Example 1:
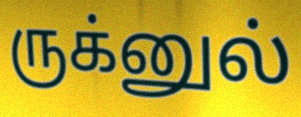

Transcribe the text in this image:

ருக்னுல்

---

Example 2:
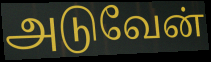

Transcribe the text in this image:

அடுவேன்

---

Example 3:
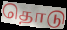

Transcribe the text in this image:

தொடு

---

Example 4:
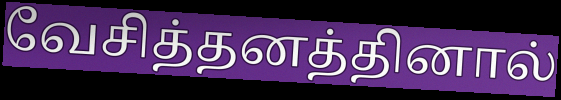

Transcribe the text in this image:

வேசித்தனத்தினால்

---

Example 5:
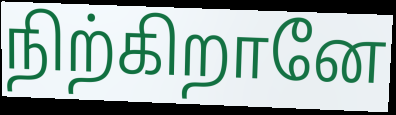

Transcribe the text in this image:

நிற்கிறானே